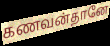
கணவன்தானே